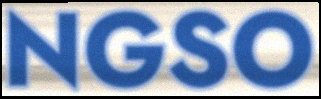
NGSO